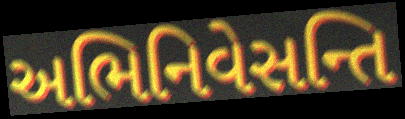
અભિનિવેસન્તિ